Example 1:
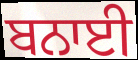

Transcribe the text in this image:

ਬਨਾਈ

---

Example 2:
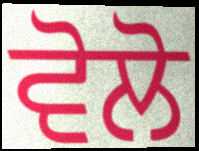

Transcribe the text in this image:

ਵੋਲੋ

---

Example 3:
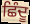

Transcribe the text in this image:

ਛਿੰਦੂ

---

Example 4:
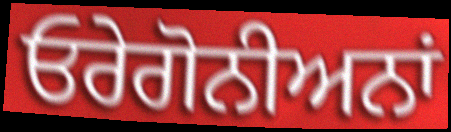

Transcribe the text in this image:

ਓਰੇਗੋਨੀਅਨਾਂ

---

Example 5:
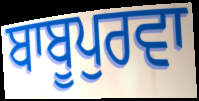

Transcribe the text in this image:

ਬਾਬੂਪੁਰਵਾ